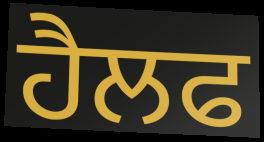
ਹੈਲਫ